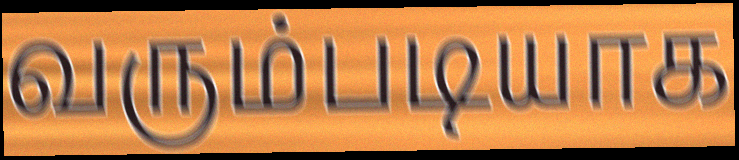
வரும்படியாக